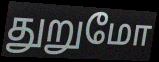
துறுமோ